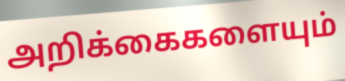
அறிக்கைகளையும்